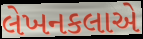
લેખનકલાએ